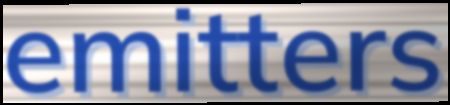
emitters